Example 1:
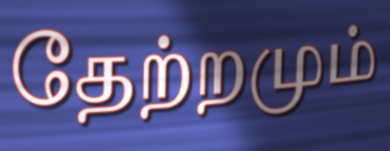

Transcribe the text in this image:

தேற்றமும்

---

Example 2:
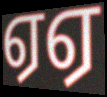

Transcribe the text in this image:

ஏஏ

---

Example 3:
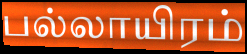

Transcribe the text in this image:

பல்லாயிரம்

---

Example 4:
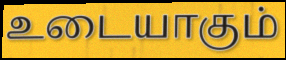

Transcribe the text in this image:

உடையாகும்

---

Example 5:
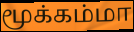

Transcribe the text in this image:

மூக்கம்மா